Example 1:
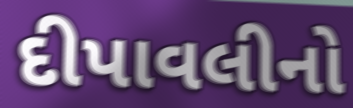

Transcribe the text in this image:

દીપાવલીનો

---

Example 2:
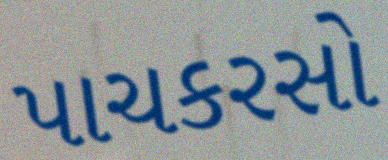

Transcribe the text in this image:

પાચકરસો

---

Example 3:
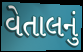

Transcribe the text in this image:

વેતાલનું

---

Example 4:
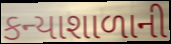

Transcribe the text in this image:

કન્યાશાળાની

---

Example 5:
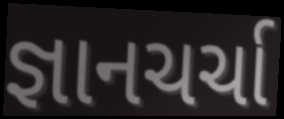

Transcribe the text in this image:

જ્ઞાનચર્ચા